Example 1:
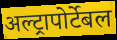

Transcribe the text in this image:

अल्ट्रापोर्टेबल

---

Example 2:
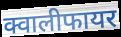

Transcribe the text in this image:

क्वालीफायर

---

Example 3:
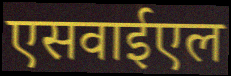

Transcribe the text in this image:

एसवाईएल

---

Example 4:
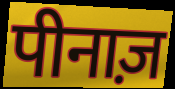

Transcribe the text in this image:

पीनाज़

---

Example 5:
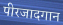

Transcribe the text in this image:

पीरजादगान